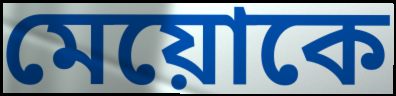
মেয়োকে